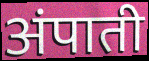
अंपाती